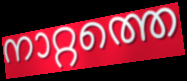
നാറ്റത്തെ